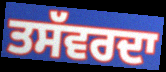
ਤਸੱਵਰਦਾ